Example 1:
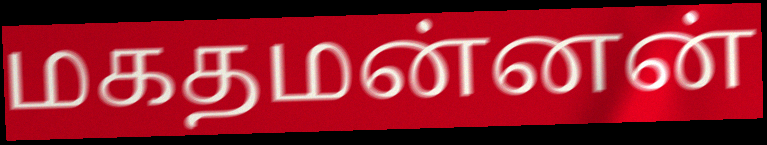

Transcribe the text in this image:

மகதமன்னன்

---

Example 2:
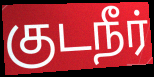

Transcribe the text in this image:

குடநீர்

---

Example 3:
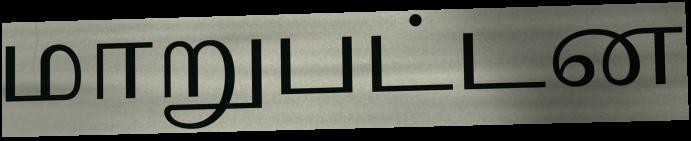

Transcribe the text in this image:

மாறுபட்டன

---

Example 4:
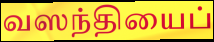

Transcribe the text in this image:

வஸந்தியைப்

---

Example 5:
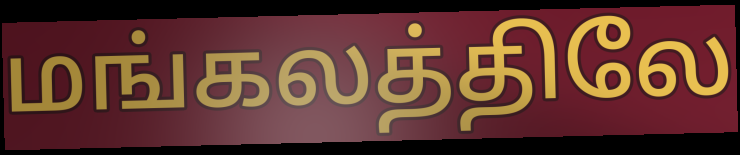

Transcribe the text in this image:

மங்கலத்திலே